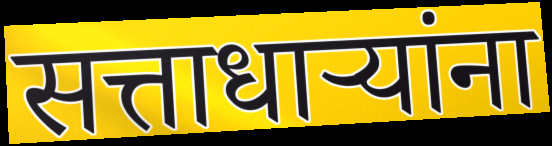
सत्ताधाऱ्यांना